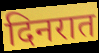
दिनरात